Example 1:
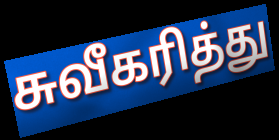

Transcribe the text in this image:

சுவீகரித்து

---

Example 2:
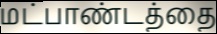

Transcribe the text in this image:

மட்பாண்டத்தை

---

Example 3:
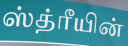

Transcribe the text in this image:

ஸ்த்ரீயின்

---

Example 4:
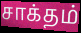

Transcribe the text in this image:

சாக்தம்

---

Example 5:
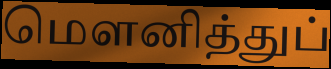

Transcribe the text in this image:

மெளனித்துப்